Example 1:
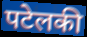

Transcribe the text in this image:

पटेलकी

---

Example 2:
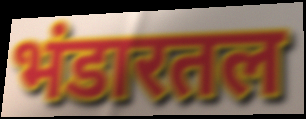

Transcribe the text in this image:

भंडारतल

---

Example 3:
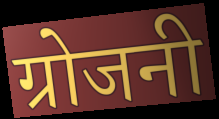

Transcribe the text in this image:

ग्रोजनी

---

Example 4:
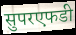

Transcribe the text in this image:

सुपरएफडी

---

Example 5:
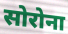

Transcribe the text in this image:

सोरोना